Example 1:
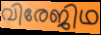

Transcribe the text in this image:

വിരേജിഥ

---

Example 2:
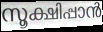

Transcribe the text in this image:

സൂക്ഷിപ്പാൻ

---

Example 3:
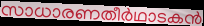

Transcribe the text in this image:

സാധാരണതീർഥാടകൻ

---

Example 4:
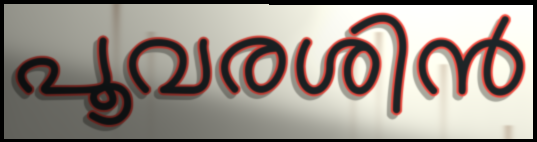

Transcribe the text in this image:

പൂവരശിൻ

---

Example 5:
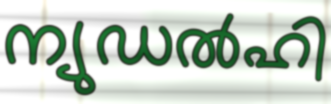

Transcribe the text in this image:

ന്യുഡൽഹി